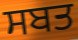
ਸਬਤ